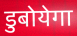
डुबोयेगा